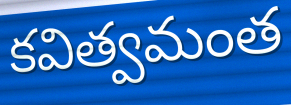
కవిత్వమంత